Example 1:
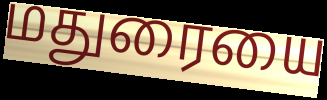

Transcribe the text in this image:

மதுரையை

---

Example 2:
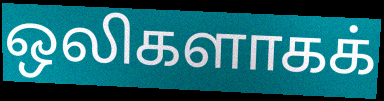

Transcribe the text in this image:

ஒலிகளாகக்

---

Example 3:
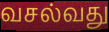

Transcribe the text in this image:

வசல்வது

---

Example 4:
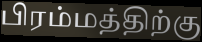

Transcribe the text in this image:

பிரம்மத்திற்கு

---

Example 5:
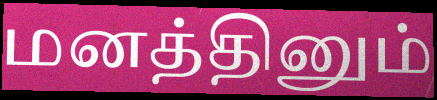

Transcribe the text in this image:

மனத்தினும்